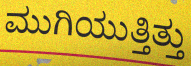
ಮುಗಿಯುತ್ತಿತ್ತು